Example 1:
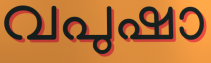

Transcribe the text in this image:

വപുഷാ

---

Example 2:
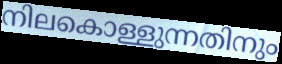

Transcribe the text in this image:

നിലകൊള്ളുന്നതിനും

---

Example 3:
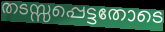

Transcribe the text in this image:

തടസ്സപ്പെട്ടതോടെ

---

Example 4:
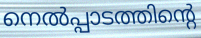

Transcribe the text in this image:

നെൽപ്പാടത്തിന്റെ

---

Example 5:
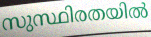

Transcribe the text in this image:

സുസ്ഥിരതയിൽ